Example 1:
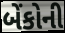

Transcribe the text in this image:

બેંકોની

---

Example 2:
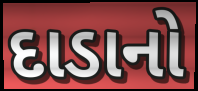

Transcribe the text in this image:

દાડાનો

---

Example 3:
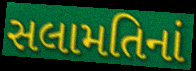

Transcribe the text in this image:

સલામતિનાં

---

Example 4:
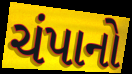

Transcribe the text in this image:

ચંપાનો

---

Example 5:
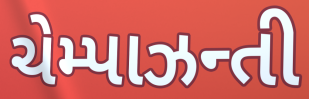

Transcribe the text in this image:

ચેમ્પાઝન્તી